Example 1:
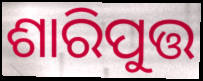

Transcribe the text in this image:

ଶାରିପୁତ୍ତ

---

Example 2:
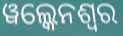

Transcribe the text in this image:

ୱଲ୍କେନଶ୍ୱର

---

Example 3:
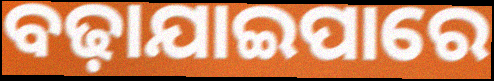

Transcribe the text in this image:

ବଢ଼ାଯାଇପାରେ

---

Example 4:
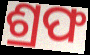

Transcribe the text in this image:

ଶ୍ରଫ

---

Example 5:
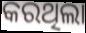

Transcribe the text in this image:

କରଥିଲା